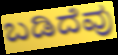
ಬಡಿದೆವು